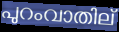
പുറംവാതില്